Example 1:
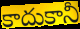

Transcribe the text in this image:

కాదుకానీ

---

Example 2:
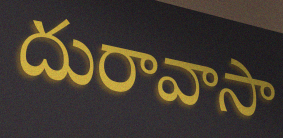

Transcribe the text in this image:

దురావాసా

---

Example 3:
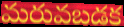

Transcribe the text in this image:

మరువబడక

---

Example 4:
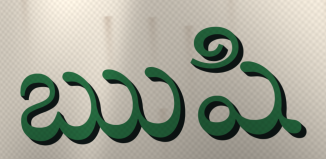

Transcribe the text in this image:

ఋషి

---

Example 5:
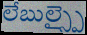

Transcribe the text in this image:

లేబుల్స్పై